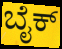
ಬೈಕ್